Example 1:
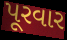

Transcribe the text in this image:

પૂરવાર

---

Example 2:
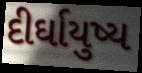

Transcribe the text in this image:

દીર્ઘાયુષ્ય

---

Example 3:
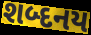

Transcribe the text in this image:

શબ્દનય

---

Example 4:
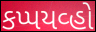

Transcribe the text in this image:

કપ્પયવ્હો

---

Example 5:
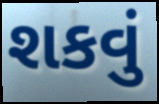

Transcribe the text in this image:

શકવું